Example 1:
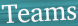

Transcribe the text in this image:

Teams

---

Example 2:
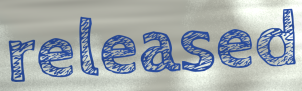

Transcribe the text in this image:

released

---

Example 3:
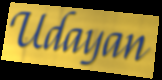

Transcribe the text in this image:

Udayan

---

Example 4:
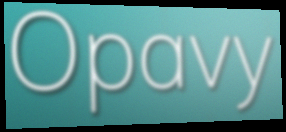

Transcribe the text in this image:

Opavy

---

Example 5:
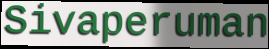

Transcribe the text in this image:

Sivaperuman